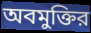
অবমুক্তির